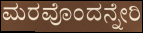
ಮರವೊಂದನ್ನೇರಿ